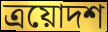
ত্রয়োদশ